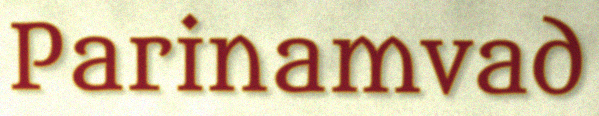
Parinamvad